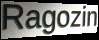
Ragozin